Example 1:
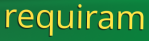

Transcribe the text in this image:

requiram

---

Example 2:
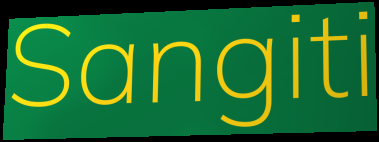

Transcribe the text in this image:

Sangiti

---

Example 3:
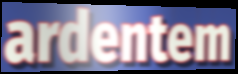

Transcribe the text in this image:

ardentem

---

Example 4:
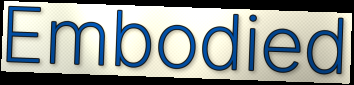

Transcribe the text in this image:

Embodied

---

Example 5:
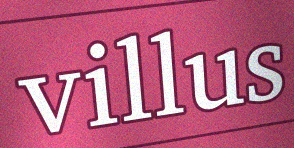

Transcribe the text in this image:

villus